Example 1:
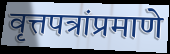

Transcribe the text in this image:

वृत्तपत्रांप्रमाणे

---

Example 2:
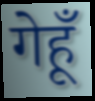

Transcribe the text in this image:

गेहूँ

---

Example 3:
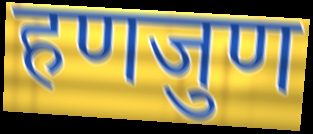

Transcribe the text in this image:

हणजुण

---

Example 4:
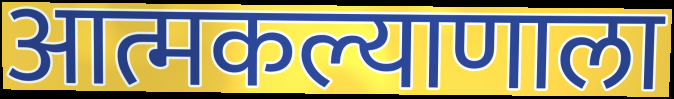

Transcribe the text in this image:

आत्मकल्याणाला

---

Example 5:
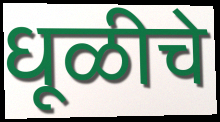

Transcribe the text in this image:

धूळीचे